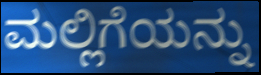
ಮಲ್ಲಿಗೆಯನ್ನು